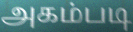
அகம்படி